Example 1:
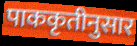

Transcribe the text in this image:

पाककृतीनुसार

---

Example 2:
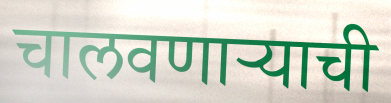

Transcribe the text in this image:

चालवणाऱ्याची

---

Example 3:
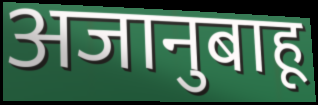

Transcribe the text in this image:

अजानुबाहू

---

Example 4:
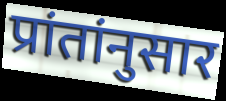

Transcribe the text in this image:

प्रांतांनुसार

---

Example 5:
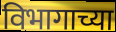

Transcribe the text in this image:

विभागाच्या